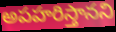
అపహరిస్తానని